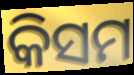
କିସମ